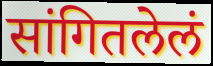
सांगितलेलं